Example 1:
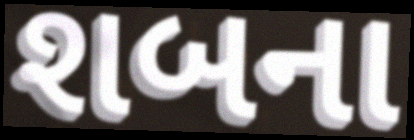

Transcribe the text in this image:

શબના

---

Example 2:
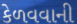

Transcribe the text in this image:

કેળવવાની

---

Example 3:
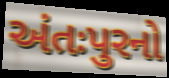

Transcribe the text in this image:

અંતઃપુરનો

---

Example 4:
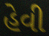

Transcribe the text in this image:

હેવી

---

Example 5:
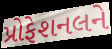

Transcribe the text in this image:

પ્રોફેશનલને